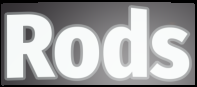
Rods